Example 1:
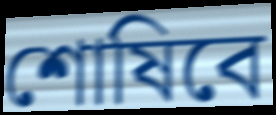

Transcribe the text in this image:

শোষিবে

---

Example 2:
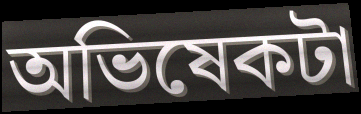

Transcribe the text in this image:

অভিষেকটা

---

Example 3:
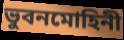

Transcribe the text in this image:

ভুবনমোহিনী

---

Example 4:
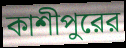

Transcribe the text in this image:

কাশীপুরের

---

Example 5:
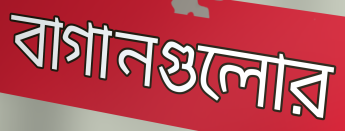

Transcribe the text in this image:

বাগানগুলোর